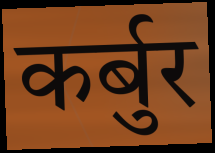
कर्बुर